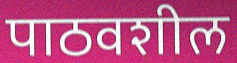
पाठवशील